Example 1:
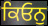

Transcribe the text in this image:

ਕਿਓਨੁ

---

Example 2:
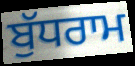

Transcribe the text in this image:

ਬੁੱਧਰਾਮ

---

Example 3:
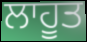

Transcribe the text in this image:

ਲਾਹੂਤ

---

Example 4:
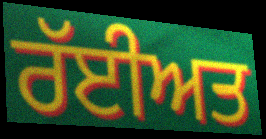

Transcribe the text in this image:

ਰੱਈਅਤ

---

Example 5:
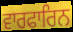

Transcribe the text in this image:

ਵਾਰਫਾਰਿਨ